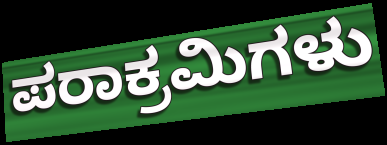
ಪರಾಕ್ರಮಿಗಳು